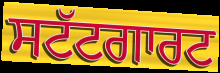
ਸਟੱਟਗਾਰਟ